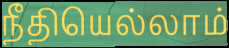
நீதியெல்லாம்